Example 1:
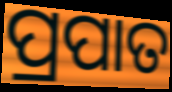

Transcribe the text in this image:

ପ୍ରପାତ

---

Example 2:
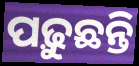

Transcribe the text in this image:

ପଢ଼ୁଛନ୍ତି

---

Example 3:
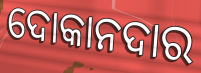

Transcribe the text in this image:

ଦୋକାନଦାର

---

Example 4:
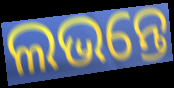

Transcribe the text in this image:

ଲଭନ୍ତେ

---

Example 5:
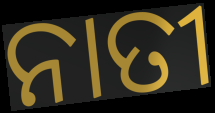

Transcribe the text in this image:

ନାତୀ